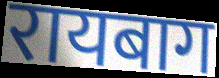
रायबाग